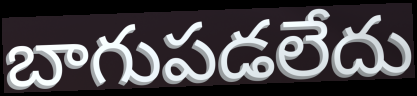
బాగుపడలేదు